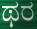
ಥರ